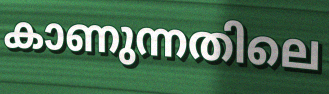
കാണുന്നതിലെ